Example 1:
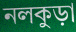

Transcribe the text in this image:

নলকুড়া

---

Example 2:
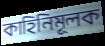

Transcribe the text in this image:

কাহিনিমূলক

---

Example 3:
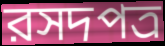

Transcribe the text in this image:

রসদপত্র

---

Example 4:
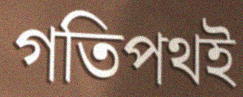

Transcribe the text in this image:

গতিপথই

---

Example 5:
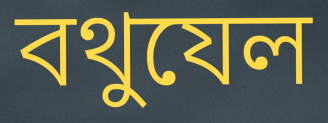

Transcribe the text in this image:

বথুযেল